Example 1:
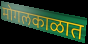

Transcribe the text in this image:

मोगलकाळात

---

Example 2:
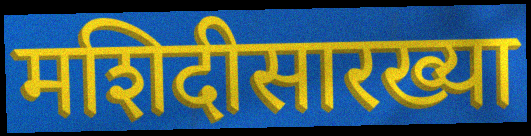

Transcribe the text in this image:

मशिदीसारख्या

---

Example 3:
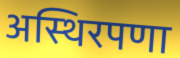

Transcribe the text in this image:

अस्थिरपणा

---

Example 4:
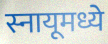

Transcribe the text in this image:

स्नायूमध्ये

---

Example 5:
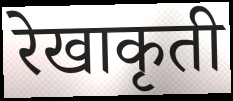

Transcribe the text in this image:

रेखाकृती